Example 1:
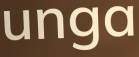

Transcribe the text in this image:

unga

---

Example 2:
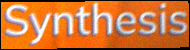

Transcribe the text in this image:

Synthesis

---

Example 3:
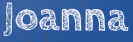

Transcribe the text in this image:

Joanna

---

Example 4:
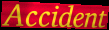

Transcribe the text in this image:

Accident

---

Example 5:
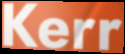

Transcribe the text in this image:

Kerr